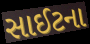
સાઈટના